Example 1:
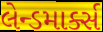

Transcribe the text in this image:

લેન્ડમાર્ક્સ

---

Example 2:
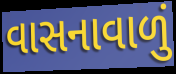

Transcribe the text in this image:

વાસનાવાળું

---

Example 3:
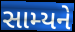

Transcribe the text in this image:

સામ્યને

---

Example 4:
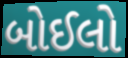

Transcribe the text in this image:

બોઈલો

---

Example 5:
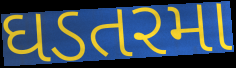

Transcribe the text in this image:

ઘડતરમા